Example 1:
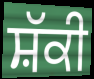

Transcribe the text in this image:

ਸ਼ੱਕੀ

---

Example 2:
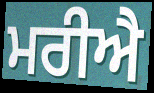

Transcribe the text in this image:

ਮਰੀਐ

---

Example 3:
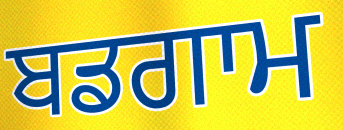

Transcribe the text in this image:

ਬਡਗਾਮ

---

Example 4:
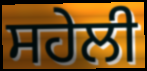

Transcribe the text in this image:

ਸਹੇਲੀ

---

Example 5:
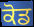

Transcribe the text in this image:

ਕੋਡ